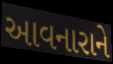
આવનારાને